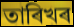
তাৰিখৰ